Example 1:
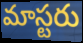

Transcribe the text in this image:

మాస్టరు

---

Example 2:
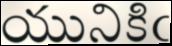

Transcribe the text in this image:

యునికిఁ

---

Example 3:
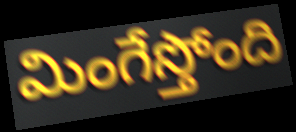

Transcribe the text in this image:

మింగేస్తోంది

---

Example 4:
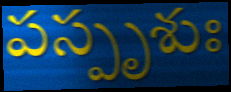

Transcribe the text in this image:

పస్పృశుః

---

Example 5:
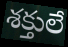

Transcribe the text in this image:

శక్తులే